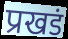
प्रखडं